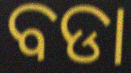
ବଡା